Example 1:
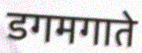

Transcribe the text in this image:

डगमगाते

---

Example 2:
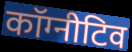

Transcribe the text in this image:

कॉग्‍नीटिव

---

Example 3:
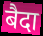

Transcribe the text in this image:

बैदा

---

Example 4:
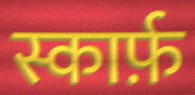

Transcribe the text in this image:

स्कार्फ़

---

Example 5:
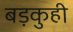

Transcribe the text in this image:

बड़कुही